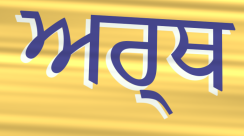
ਅਰ੍ਥ